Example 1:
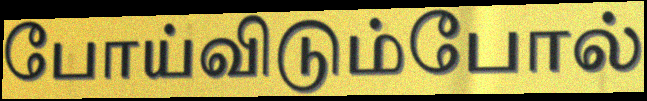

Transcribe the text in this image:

போய்விடும்போல்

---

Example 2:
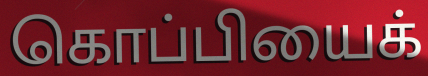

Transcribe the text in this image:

கொப்பியைக்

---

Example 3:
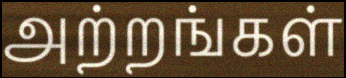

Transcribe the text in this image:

அற்றங்கள்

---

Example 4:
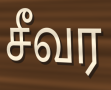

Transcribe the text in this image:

சீவர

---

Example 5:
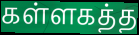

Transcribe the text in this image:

கள்ளகத்த